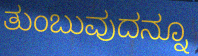
ತುಂಬುವುದನ್ನೂ